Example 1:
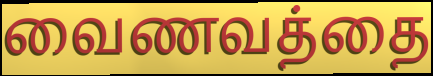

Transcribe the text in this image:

வைணவத்தை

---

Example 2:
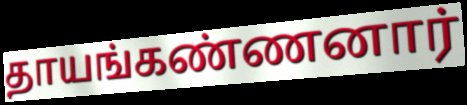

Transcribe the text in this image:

தாயங்கண்ணனார்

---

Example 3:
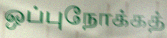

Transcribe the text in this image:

ஒப்புநோக்கத்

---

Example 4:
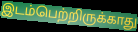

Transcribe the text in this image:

இடம்பெற்றிருக்காது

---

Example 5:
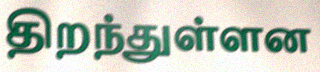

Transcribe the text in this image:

திறந்துள்ளன